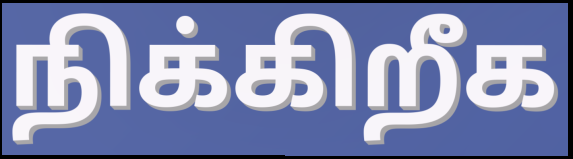
நிக்கிறீக